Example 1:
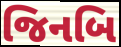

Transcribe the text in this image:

જિનબિ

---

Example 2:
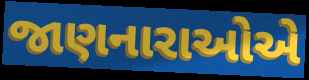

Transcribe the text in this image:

જાણનારાઓએ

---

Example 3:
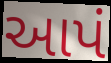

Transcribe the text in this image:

આપં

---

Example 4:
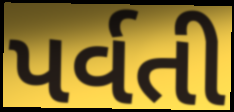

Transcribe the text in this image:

પર્વતી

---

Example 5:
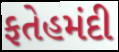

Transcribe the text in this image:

ફતેહમંદી